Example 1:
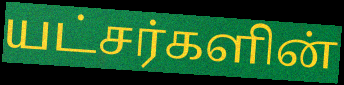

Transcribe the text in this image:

யட்சர்களின்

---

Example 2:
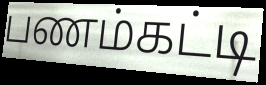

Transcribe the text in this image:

பணம்கட்டி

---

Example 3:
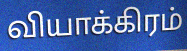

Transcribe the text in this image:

வியாக்கிரம்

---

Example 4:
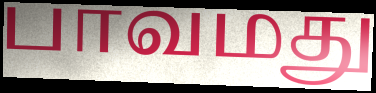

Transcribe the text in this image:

பாவமது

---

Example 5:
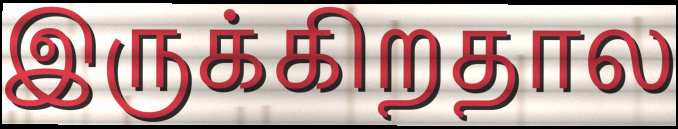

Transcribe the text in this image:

இருக்கிறதால